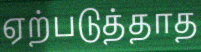
ஏற்படுத்தாத